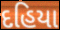
દહિયા